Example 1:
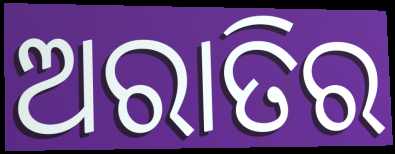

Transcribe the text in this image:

ଅରାତିର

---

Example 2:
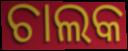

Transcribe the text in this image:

ଚାଲକ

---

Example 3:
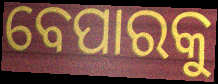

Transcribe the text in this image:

ବେପାରକୁ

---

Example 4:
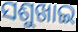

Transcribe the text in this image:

ସଶୁଖାଇ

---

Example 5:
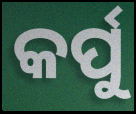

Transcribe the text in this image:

କର୍ପୁ